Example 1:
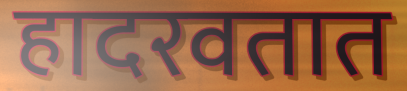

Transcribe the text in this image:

हादरवतात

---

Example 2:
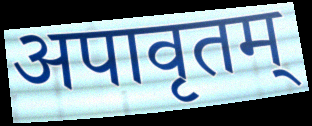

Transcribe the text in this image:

अपावृतम्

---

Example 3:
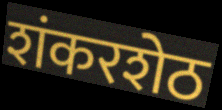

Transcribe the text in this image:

शंकरशेठ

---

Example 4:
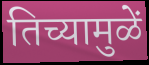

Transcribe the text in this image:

तिच्यामुळें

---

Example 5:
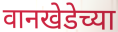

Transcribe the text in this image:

वानखेडेच्या